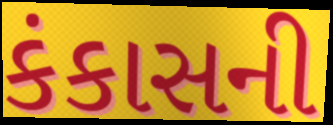
કંકાસની